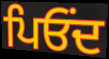
ਪਿਓਂਦ